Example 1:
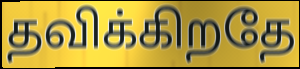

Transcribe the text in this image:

தவிக்கிறதே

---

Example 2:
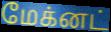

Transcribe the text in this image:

மேக்னட்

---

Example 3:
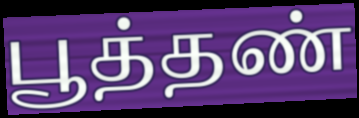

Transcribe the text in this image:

பூத்தண்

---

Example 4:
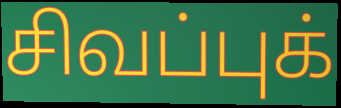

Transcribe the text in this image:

சிவப்புக்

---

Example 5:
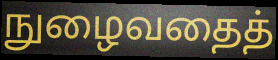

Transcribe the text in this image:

நுழைவதைத்